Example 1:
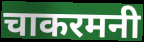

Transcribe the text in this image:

चाकरमनी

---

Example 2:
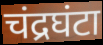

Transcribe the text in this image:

चंद्रघंटा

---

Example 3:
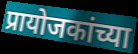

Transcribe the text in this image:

प्रायोजकांच्या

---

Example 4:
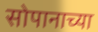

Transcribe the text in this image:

सोपानाच्या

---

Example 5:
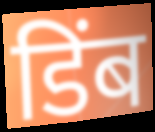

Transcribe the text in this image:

डिंब